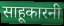
साहूकारनी